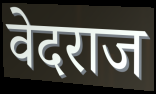
वेदराज